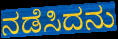
ನಡೆಸಿದನು